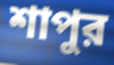
শাপুর